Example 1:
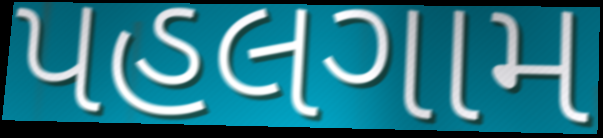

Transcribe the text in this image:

પહલગામ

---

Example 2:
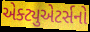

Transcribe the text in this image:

એક્ટ્યુએટર્સનો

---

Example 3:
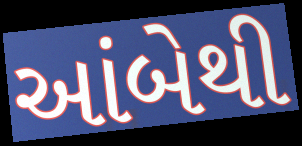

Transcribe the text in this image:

આંબેથી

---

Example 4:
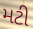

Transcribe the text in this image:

મટી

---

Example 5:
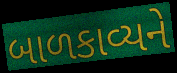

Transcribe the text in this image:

બાળકાવ્યને